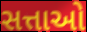
સત્તાઓ